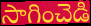
సాగించెడి